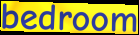
bedroom